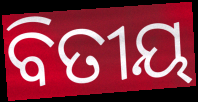
ବିତୀୟ